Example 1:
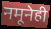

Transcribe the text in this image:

नमूनेही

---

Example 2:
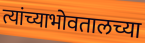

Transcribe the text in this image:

त्यांच्याभोवतालच्या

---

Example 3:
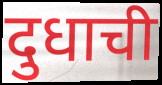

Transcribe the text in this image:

दुधाची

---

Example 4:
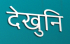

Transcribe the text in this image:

देखुनि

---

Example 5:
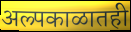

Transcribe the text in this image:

अल्पकाळातही